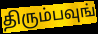
திரும்பவுங்